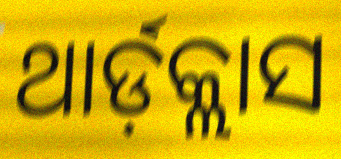
ଥାର୍ଡ଼କ୍ଲାସ